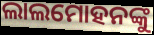
ଲାଲମୋହନଙ୍କୁ